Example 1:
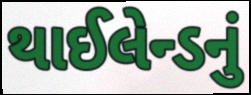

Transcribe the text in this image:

થાઈલેન્ડનું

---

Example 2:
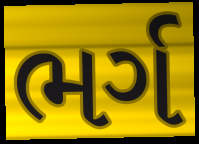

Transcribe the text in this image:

ભર્ગ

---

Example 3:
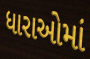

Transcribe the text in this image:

ધારાઓમાં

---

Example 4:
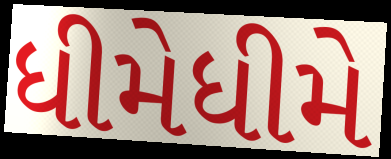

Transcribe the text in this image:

ધીમેધીમે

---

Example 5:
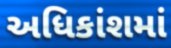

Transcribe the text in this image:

અધિકાંશમાં